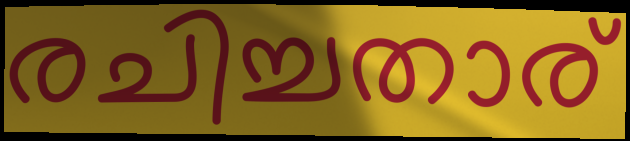
രചിച്ചതാര്